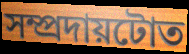
সম্প্ৰদায়টোত